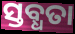
ସ୍ତବ୍ଧତା